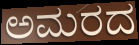
ಅಮರದ